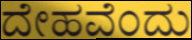
ದೇಹವೆಂದು